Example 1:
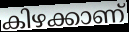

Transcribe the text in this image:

കിഴക്കാണ്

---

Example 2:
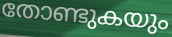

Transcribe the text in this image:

തോണ്ടുകയും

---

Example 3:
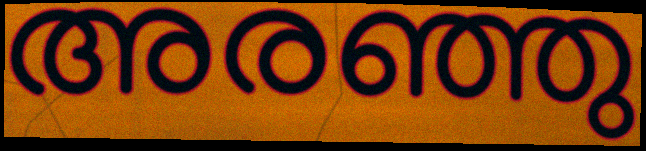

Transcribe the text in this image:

അരഞ്ഞു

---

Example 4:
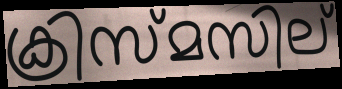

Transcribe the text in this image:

ക്രിസ്മസില്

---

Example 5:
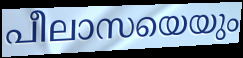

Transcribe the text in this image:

പീലാസയെയും